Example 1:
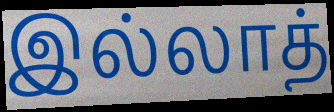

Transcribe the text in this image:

இல்லாத்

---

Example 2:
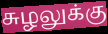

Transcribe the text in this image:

சுழலுக்கு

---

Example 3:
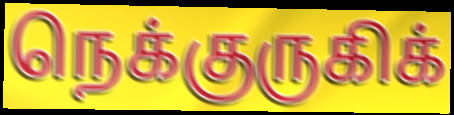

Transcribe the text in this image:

நெக்குருகிக்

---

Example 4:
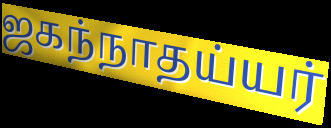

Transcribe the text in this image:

ஜகந்நாதய்யர்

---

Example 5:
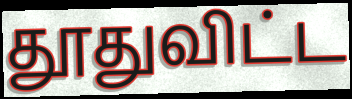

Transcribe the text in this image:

தூதுவிட்ட